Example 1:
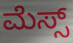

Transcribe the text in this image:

ಮೆಸ್ಸ್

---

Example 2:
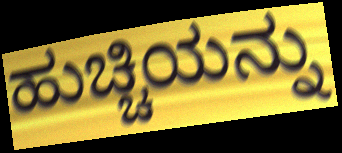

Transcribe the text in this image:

ಹುಚ್ಚಿಯನ್ನು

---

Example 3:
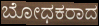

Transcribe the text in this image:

ಬೋಧಕರಾದ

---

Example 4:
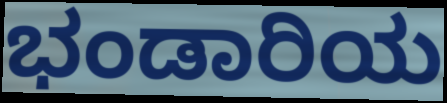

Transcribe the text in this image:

ಭಂಡಾರಿಯ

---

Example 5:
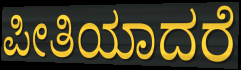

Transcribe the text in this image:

ಪೀತಿಯಾದರೆ